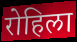
रोहिला